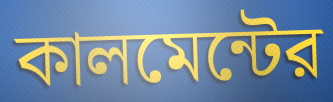
কালমেন্টের